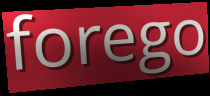
forego